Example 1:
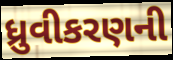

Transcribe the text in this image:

ધ્રુવીકરણની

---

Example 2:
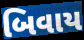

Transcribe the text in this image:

બિવાય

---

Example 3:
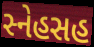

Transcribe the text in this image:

સ્નેહસહ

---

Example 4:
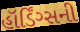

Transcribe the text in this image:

હૉર્ડિંગ્સની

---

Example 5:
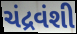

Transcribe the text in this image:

ચંદ્રવંશી